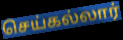
செய்கல்லார்